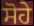
ਸੋਹੇ